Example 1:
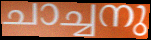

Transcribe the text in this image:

ചാച്ചനു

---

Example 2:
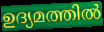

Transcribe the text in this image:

ഉദ്യമത്തിൽ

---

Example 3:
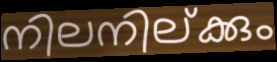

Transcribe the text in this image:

നിലനില്ക്കും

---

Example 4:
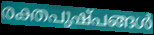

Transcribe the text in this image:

രക്തപുഷ്പങ്ങൾ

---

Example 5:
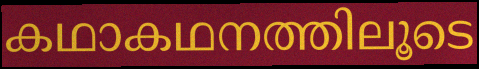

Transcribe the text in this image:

കഥാകഥനത്തിലൂടെ